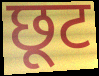
छूट